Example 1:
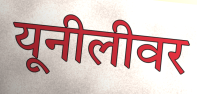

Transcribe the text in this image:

यूनीलीवर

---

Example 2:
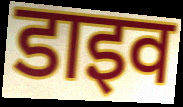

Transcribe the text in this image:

डाइव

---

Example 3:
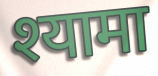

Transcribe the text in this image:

श्‍यामा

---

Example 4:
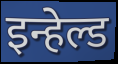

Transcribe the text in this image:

इन्हेल्ड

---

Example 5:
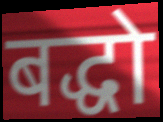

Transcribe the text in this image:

बद्धो